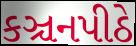
કઞ્ચનપીઠે